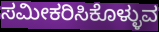
ಸಮೀಕರಿಸಿಕೊಳ್ಳುವ